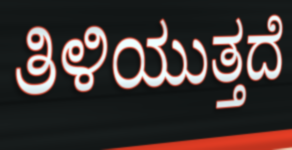
ತಿಳಿಯುತ್ತದೆ